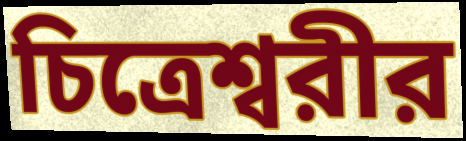
চিত্রেশ্বরীর